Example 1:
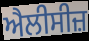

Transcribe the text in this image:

ਐਲੀਸੀਜ਼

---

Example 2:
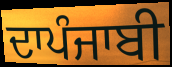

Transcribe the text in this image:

ਦਾਪੰਜਾਬੀ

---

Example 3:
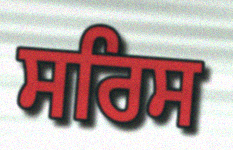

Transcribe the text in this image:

ਸਰਿਸ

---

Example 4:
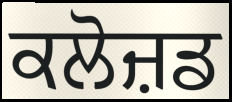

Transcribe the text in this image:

ਕਲੋਜ਼ਡ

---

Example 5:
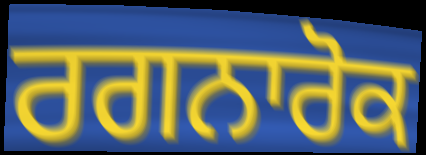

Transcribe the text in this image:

ਰਗਨਾਰੋਕ